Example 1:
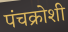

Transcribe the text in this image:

पंचक्रोशी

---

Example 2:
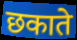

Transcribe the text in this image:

छकाते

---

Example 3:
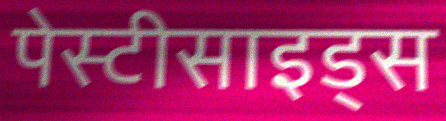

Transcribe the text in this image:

पेस्टीसाइड्स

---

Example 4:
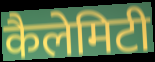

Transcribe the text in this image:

कैलेमिटी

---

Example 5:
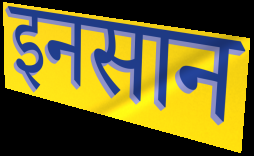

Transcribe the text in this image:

इनसान